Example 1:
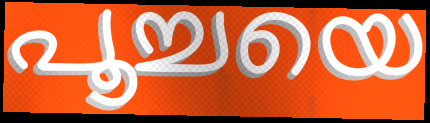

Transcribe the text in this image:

പൂച്ചയെ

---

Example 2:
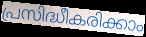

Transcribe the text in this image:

പ്രസിദ്ധീകരിക്കാം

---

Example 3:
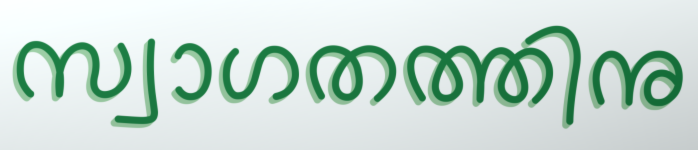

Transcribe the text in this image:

സ്വാഗതത്തിനു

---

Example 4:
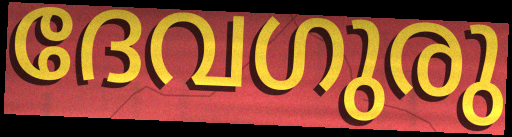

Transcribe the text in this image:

ദേവഗുരു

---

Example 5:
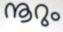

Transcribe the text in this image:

നൂറും